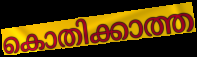
കൊതിക്കാത്ത